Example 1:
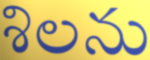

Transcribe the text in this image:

శిలను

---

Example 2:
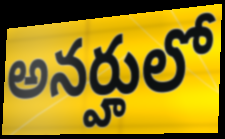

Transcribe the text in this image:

అనర్హులో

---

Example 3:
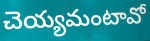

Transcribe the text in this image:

చెయ్యమంటావో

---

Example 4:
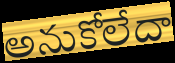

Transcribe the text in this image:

అనుకోలేదా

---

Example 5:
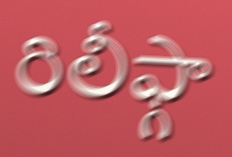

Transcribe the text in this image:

రిలీఫ్గా